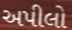
અપીલો